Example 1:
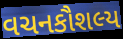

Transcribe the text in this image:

વચનકૌશલ્ય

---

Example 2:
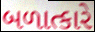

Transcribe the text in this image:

બળાત્કારે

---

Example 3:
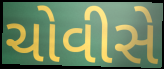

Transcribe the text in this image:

ચોવીસે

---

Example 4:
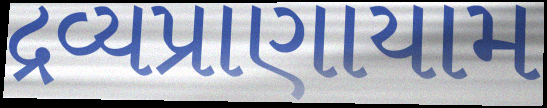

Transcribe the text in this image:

દ્રવ્યપ્રાણાયામ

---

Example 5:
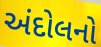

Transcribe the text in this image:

અંદોલનો